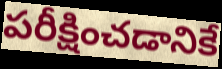
పరీక్షించడానికే